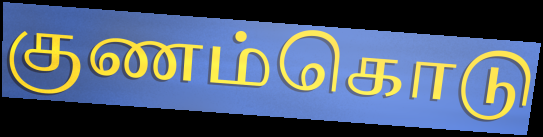
குணம்கொடு